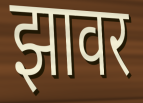
झावर